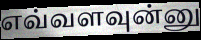
எவ்வளவுன்னு